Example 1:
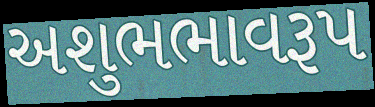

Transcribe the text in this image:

અશુભભાવરૂપ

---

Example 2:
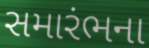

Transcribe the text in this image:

સમારંભના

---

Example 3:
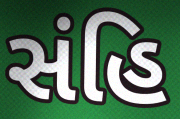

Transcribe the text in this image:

સંહિ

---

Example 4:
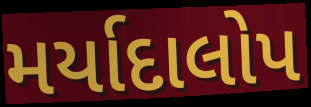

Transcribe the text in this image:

મર્યાદાલોપ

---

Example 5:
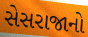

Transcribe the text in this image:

સેસરાજાનો